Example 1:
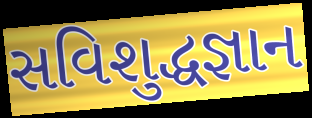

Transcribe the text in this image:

સવિશુદ્ધજ્ઞાન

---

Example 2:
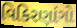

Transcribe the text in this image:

વિકિરણાંગો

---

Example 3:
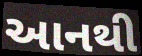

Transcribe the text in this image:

આનથી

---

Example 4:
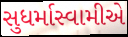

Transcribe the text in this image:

સુધર્માસ્વામીએ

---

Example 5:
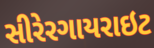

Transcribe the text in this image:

સીરેરગાયરાઇટ